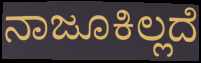
ನಾಜೂಕಿಲ್ಲದೆ